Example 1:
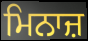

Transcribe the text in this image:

ਮਿਨਾਜ਼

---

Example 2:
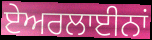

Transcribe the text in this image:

ਏਅਰਲਾਈਨਾਂ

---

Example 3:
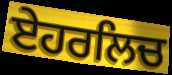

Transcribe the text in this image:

ਏਹਰਲਿਚ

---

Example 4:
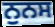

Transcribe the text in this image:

ਨੁਨਸ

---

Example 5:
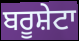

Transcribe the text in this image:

ਬਰੂਸ਼ੇਟਾ